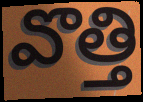
వొత్తి